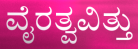
ವೈರತ್ವವಿತ್ತು